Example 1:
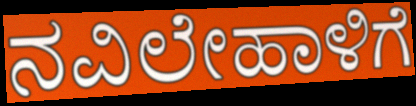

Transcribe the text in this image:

ನವಿಲೇಹಾಳಿಗೆ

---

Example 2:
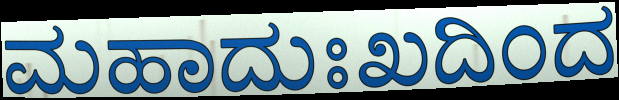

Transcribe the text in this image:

ಮಹಾದುಃಖದಿಂದ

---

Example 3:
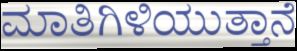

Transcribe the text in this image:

ಮಾತಿಗಿಳಿಯುತ್ತಾನೆ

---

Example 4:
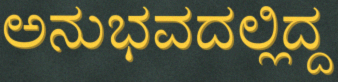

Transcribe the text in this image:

ಅನುಭವದಲ್ಲಿದ್ದ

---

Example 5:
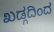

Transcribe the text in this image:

ಖಡ್ಗದಿಂದ